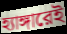
হ্যাঙ্গারেই